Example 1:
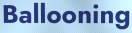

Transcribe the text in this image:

Ballooning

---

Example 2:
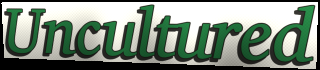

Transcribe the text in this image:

Uncultured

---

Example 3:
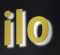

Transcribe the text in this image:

ilo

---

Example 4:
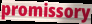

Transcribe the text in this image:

promissory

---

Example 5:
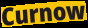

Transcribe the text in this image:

Curnow